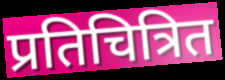
प्रतिचित्रित